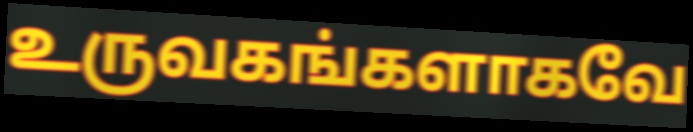
உருவகங்களாகவே